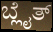
ಬ್ಲೈತ್